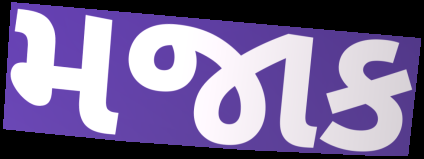
મજાક